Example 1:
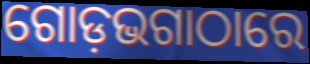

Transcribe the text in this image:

ଗୋଡ଼ଭଗାଠାରେ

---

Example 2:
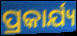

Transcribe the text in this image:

ପ୍ରକାର୍ଯ୍ୟ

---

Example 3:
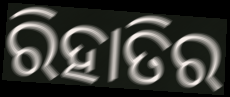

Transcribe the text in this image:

ରିହାତିର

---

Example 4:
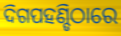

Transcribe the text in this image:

ଦିଗପହଣ୍ଡିଠାରେ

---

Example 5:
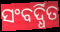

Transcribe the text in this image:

ସଂବର୍ଦ୍ଧିତ